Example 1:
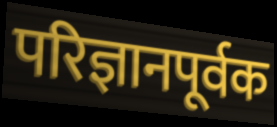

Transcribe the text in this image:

परिज्ञानपूर्वक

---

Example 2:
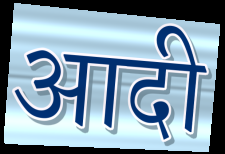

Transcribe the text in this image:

आदी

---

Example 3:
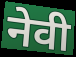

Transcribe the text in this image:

नेवी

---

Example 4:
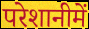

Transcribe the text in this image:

परेशानीमें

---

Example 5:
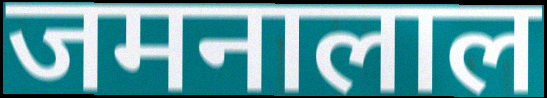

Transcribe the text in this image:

जमनालाल